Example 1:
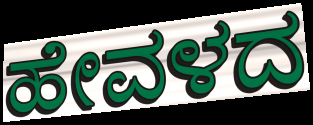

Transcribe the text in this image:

ಹೇವಳದ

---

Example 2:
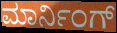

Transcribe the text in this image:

ಮಾರ್ನಿಂಗ್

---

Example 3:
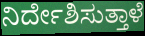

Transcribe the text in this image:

ನಿರ್ದೇಶಿಸುತ್ತಾಳೆ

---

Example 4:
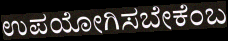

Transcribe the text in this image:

ಉಪಯೋಗಿಸಬೇಕೆಂಬ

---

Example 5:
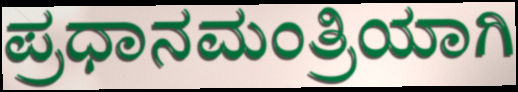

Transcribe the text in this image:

ಪ್ರಧಾನಮಂತ್ರಿಯಾಗಿ